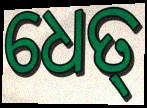
ଧେତ୍